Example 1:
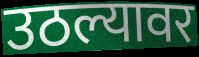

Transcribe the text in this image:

उठल्यावर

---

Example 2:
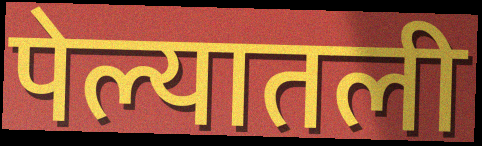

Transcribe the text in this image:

पेल्यातली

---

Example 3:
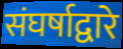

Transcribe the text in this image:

संघर्षाद्वारे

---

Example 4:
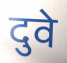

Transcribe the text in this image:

दुवे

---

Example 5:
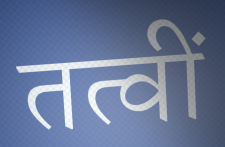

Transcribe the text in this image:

तत्वीं